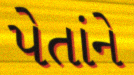
પેતાંને